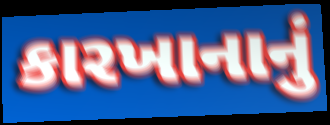
કારખાનાનું